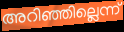
അറിഞ്ഞില്ലെന്ന്